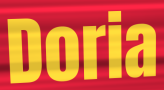
Doria